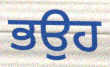
ਭਉਹ